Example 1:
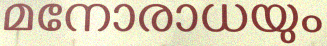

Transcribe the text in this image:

മനോരാധയും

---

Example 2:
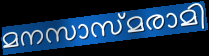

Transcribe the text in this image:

മനസാസ്മരാമി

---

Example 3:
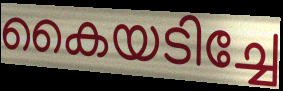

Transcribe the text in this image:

കൈയടിച്ചേ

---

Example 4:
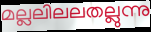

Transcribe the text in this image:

മല്ലലിലലതല്ലുന്നു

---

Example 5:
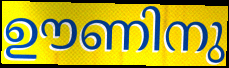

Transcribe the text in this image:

ഊണിനു